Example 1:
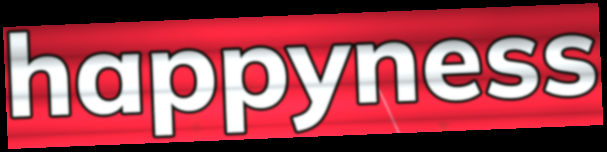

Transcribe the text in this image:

happyness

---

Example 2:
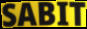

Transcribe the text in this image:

SABIT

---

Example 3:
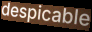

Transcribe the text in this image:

despicable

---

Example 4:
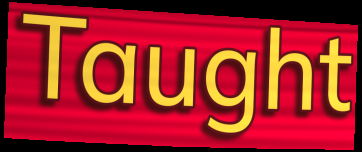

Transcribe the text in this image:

Taught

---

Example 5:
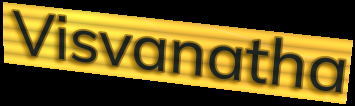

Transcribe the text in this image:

Visvanatha